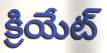
క్రియేట్